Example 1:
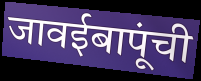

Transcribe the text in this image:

जावईबापूंची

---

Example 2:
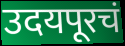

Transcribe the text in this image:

उदयपूरचं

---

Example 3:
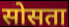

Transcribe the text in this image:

सोसता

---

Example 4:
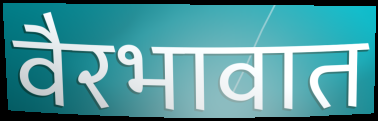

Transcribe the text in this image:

वैरभावात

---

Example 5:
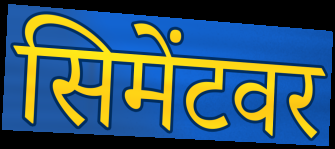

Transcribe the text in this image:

सिमेंटवर